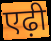
एढ़ी